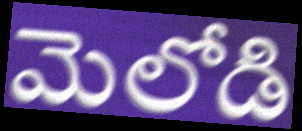
మెలోడి